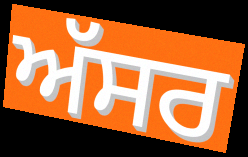
ਅੱਸਰ